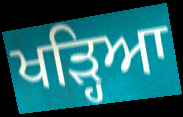
ਖੜ੍ਹਿਆ